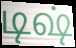
டிஷ்